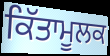
ਕਿੱਤਾਮੂਲਕ